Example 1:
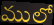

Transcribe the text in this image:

ములో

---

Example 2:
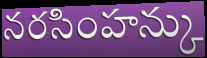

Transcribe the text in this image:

నరసింహన్కు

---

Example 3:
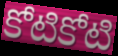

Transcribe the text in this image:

కోటికోటి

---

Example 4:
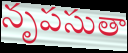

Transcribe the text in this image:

నృపసుతా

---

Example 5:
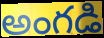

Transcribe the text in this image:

అంగడి